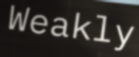
Weakly